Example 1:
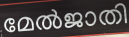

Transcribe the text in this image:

മേൽജാതി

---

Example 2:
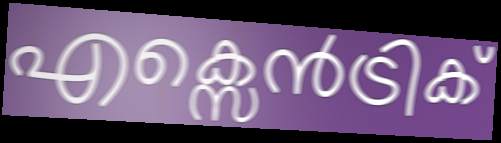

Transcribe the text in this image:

എക്സെൻട്രിക്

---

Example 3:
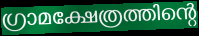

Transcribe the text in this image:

ഗ്രാമക്ഷേത്രത്തിന്റെ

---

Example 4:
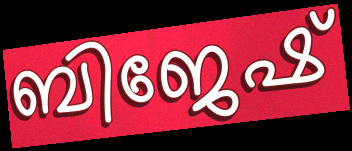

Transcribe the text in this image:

ബിജേഷ്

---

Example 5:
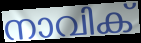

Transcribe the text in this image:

നാവിക്